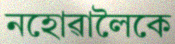
নহোৱালৈকে